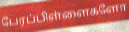
பேரப்பிள்ளைகளோ